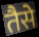
तैसे